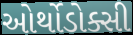
ઓર્થોડોક્સી